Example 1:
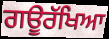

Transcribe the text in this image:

ਗਊਰੱਖਿਆ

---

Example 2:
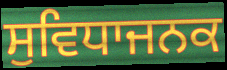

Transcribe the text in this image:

ਸੁਵਿਧਾਜਨਕ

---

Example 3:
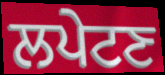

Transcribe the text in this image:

ਲਪੇਟਣ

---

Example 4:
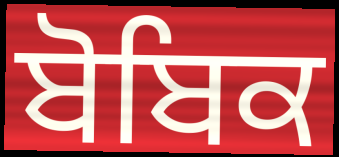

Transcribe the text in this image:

ਬੋਬਿਕ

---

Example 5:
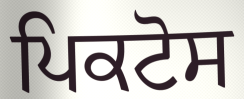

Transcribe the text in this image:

ਪਿਕਟੋਸ